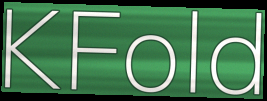
KFold